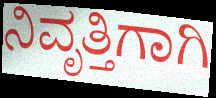
ನಿವೃತ್ತಿಗಾಗಿ